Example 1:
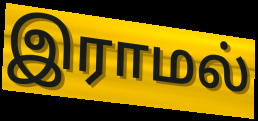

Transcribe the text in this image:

இராமல்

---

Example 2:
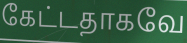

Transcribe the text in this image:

கேட்டதாகவே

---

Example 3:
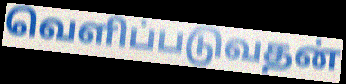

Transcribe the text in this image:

வெளிப்படுவதன்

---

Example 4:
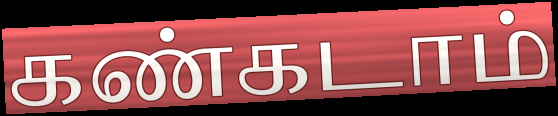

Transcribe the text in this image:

கண்கடாம்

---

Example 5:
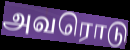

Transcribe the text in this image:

அவரொடு